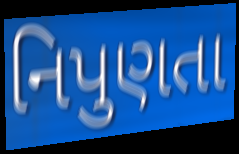
નિપુણતા